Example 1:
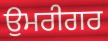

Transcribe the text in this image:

ਉਮਰੀਗਰ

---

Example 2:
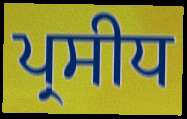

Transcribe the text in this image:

ਪ੍ਰਸੀਧ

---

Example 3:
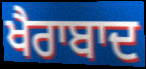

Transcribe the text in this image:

ਖੈਰਾਬਾਦ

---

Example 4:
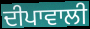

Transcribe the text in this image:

ਦੀਪਾਵਾਲੀ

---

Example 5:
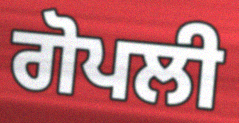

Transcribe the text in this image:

ਗੋਪਲੀ